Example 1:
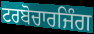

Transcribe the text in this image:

ਟਰਬੋਚਾਰਜਿੰਗ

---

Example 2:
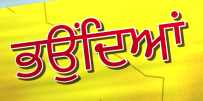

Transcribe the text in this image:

ਭਉਂਦਿਆਂ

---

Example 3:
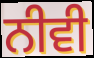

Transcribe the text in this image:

ਨੀਵੀ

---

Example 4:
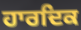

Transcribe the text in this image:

ਹਾਰਦਿਕ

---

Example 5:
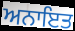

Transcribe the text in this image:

ਅਨਾਇਤ